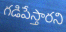
గడిపేస్తారని